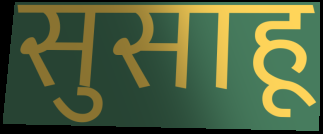
सुसाहू